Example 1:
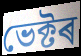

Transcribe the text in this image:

ভেক্টৰ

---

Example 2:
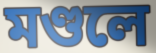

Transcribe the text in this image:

মণ্ডলে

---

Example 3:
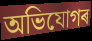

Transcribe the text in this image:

অভিযোগৰ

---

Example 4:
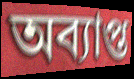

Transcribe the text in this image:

অব্যাপ্ত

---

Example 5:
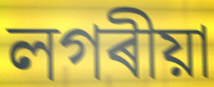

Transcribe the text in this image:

লগৰীয়া